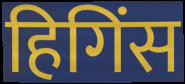
हिगिंस